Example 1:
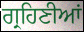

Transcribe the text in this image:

ਗ੍ਰਹਿਣੀਆਂ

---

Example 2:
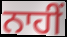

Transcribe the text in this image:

ਨਾਹੀਂ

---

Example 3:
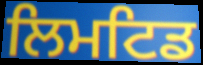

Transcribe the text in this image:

ਲਿਮਟਿਡ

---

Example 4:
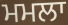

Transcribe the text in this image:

ਮਮਲਾ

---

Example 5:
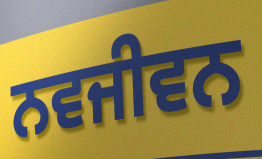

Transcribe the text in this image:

ਨਵਜੀਵਨ